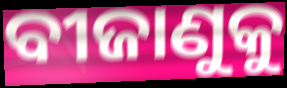
ବୀଜାଣୁକୁ